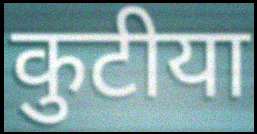
कुटीया